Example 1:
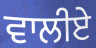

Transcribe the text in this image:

ਵਾਲੀਏ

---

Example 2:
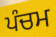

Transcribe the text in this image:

ਪੰਚਮ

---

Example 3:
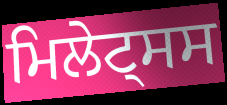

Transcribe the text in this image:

ਮਿਲੇਟ੍ਸਸ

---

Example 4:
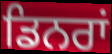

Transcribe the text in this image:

ਡਿਨਰਾਂ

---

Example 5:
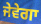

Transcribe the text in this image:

ਜੇਵੇਗਾ